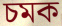
চমক